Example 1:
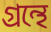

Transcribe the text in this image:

গ্ৰন্থে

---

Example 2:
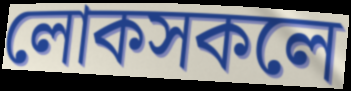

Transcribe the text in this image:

লোকসকলে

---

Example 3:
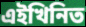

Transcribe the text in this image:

এইখিনিত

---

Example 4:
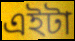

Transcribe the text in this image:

এইটা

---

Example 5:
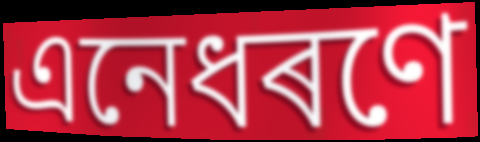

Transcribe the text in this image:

এনেধৰণে